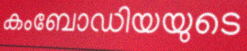
കംബോഡിയയുടെ